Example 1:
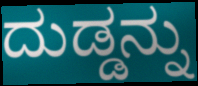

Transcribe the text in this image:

ದುಡ್ಡನ್ನು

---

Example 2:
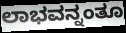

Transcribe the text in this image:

ಲಾಭವನ್ನಂತೂ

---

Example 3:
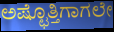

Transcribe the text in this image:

ಅಷ್ಟೊತ್ತಿಗಾಗಲೇ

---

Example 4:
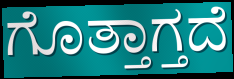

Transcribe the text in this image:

ಗೊತ್ತಾಗ್ತದೆ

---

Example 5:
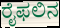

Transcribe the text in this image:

ರೈಫಲಿನ